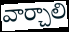
వార్చాలి